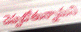
చెప్పబోతున్నామని